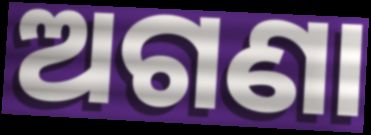
ଅଗଣା